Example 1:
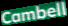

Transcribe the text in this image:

Cambell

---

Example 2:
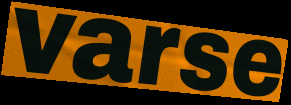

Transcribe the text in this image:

varse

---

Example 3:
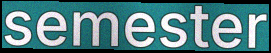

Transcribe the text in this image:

semester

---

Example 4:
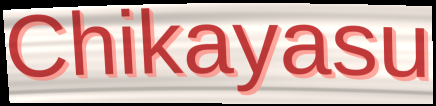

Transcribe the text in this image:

Chikayasu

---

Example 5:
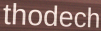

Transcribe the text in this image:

thodech